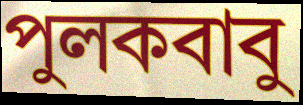
পুলকবাবু